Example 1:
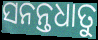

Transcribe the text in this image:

ସନନ୍ତଧାତୁ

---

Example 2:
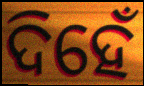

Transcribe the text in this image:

ଦିହେଁ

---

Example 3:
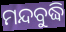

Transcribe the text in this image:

ମନ୍ଦବୁଦ୍ଧି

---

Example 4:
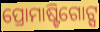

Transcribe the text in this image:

ପ୍ରୋମାଷ୍ଟିଗୋଟ୍ସ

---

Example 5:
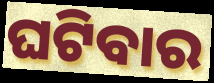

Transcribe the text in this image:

ଘଟିବାର